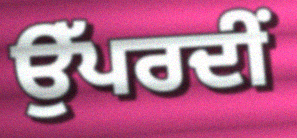
ਉੱਪਰਦੀਂ